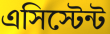
এসিস্টেন্ট